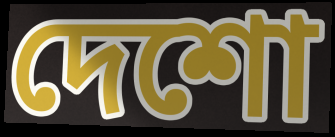
দেশো